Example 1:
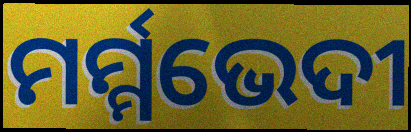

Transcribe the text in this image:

ମର୍ମ୍ମଭେଦୀ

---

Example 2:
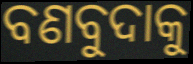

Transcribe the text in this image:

ବଣବୁଦାକୁ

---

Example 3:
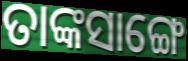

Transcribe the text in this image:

ତାଙ୍କସାଙ୍ଗେ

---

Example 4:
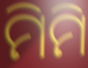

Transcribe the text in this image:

ମିମି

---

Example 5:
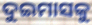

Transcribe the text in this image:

ଦୁଇମାସକୁ